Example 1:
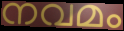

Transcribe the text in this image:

നവമം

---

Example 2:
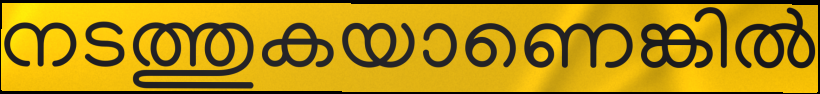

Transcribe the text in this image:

നടത്തുകയാണെങ്കിൽ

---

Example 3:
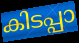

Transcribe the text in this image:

കിടപ്പാ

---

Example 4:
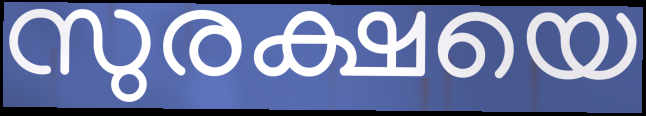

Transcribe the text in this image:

സുരക്ഷയെ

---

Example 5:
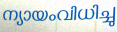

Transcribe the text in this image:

ന്യായംവിധിച്ചു